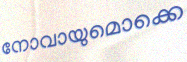
നോവായുമൊക്കെ